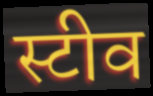
स्टीव